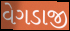
વેગડાજી